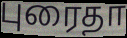
புரைதா